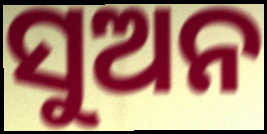
ସୁଅନ